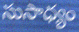
సుసాధ్యం